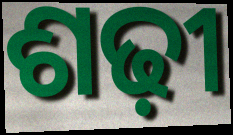
ଶଢ଼ୀ